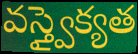
వస్త్వైక్యత